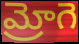
మ్రోగె